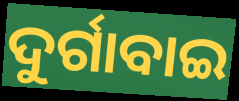
ଦୁର୍ଗାବାଇ